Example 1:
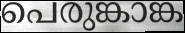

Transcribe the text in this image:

പെരുങ്കാങ്ക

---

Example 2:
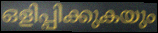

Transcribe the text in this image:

ഒളിപ്പിക്കുകയും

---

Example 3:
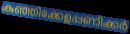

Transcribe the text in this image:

കുഞ്ഞിക്കേളപ്പണിക്കർ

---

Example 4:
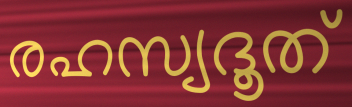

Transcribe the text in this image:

രഹസ്യദൂത്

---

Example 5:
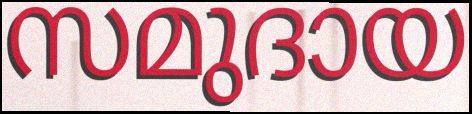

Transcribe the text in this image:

സമുദായ